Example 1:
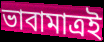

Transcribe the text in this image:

ভাবামাত্রই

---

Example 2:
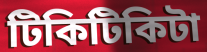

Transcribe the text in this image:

টিকিটিকিটা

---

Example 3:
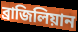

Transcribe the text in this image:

ব্রাজিলিয়ান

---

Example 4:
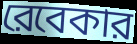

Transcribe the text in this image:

রেবেকার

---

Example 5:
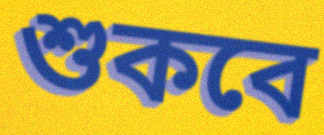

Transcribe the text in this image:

শুকবে